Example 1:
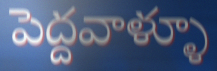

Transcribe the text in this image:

పెద్దవాళ్ళూ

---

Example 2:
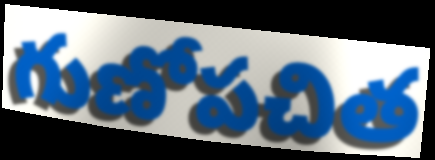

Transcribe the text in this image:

గుణోపచిత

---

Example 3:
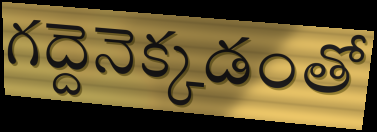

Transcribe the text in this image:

గద్దెనెక్కడంతో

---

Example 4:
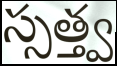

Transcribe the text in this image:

స్సత్త్వ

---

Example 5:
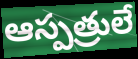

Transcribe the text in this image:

ఆస్పత్రులే